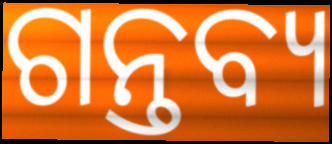
ଗନ୍ତବ୍ୟ